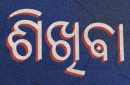
ଶିଖିଵା